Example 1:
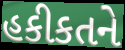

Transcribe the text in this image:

હકીકતને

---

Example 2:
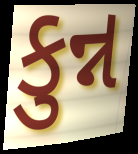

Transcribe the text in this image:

કુન્ન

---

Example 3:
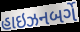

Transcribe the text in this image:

હાઇઝનબર્ગે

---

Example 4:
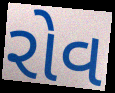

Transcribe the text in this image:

રોવ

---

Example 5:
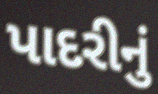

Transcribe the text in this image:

પાદરીનું